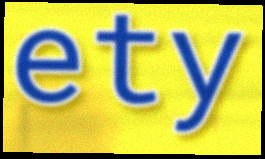
ety